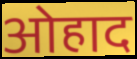
ओहाद